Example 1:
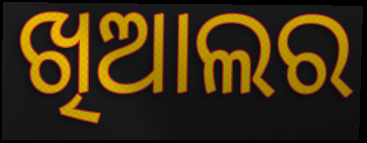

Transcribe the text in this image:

ଖିଆଲର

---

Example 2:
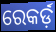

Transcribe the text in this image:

ରେକର୍ଡ଼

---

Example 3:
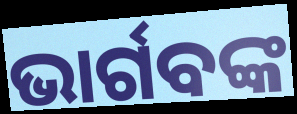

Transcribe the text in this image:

ଭାର୍ଗବଙ୍କ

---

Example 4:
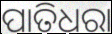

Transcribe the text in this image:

ପାତିଧରା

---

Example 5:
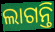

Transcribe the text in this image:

ଲାଗନ୍ତି